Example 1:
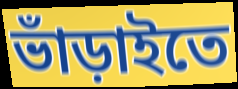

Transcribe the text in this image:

ভাঁড়াইতে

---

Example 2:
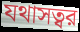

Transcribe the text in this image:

যথাসত্বর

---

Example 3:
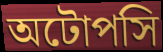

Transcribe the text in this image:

অটোপসি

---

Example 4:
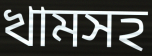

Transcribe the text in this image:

খামসহ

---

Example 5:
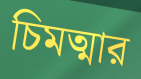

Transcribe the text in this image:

চিমত্মার